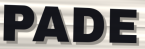
PADE